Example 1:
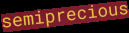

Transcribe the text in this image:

semiprecious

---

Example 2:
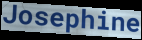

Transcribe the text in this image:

Josephine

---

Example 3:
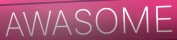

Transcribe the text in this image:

AWASOME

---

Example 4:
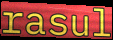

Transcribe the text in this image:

rasul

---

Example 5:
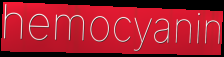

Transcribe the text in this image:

hemocyanin